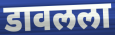
डावलला